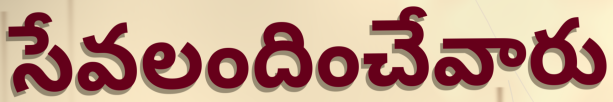
సేవలందించేవారు